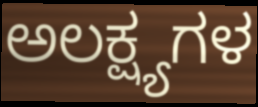
ಅಲಕ್ಷ್ಯಗಳ